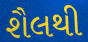
શૈલથી